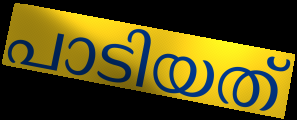
പാടിയത്